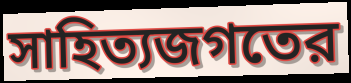
সাহিত্যজগতের